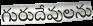
గురుదేవులను